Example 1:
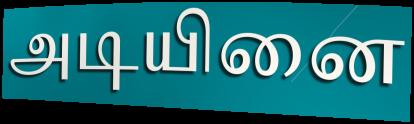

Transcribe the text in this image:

அடியினை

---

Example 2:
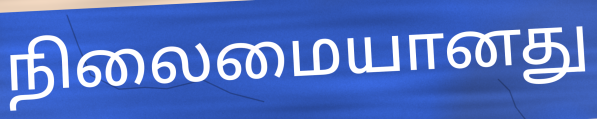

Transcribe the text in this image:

நிலைமையானது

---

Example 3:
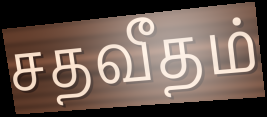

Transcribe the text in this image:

சதவீதம்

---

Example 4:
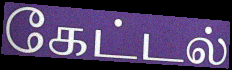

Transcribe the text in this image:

கேட்டல்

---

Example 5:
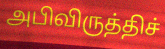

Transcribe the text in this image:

அபிவிருத்திச்